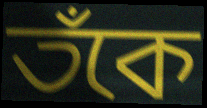
তঁকে